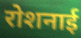
रोशनाई